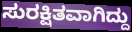
ಸುರಕ್ಷಿತವಾಗಿದ್ದು